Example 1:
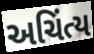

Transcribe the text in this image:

અચિંત્ય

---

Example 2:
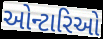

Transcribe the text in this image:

ઓન્ટારિઓ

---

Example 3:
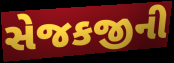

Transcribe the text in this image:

સેજકજીની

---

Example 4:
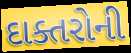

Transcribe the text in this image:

દાક્તરોની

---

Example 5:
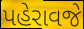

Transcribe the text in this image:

પહેરાવજે